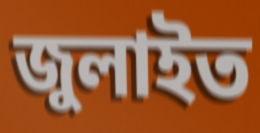
জুলাইত